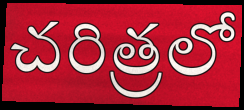
చరిత్రలో